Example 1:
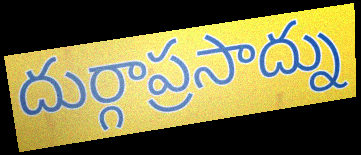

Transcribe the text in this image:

దుర్గాప్రసాద్ను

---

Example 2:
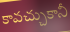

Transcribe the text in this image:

కావచ్చుకానీ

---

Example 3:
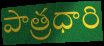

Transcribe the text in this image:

పాత్రధారి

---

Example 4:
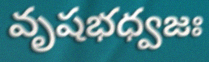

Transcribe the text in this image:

వృషభధ్వజః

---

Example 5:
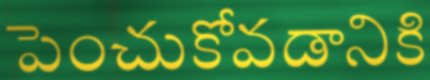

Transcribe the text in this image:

పెంచుకోవడానికి